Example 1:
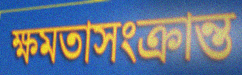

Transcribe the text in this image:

ক্ষমতাসংক্রান্ত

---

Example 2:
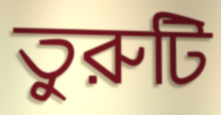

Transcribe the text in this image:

তুরুটি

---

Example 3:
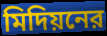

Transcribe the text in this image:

মিদিয়নের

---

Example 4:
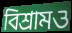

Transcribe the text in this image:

বিশ্রামও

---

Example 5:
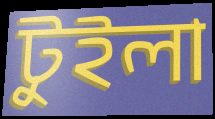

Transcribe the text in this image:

টুইলা